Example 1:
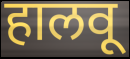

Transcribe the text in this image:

हालवू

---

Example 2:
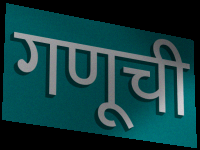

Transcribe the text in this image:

गणूची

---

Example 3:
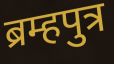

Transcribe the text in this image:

ब्रम्हपुत्र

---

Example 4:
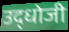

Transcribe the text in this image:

उद्धोजी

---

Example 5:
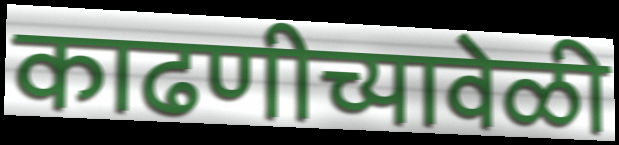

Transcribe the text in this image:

काढणीच्यावेळी